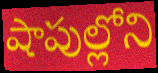
షాపుల్లోని